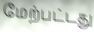
மேற்பட்டது